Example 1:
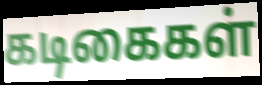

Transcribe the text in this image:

கடிகைகள்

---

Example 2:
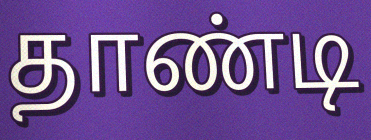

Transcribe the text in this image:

தாண்டி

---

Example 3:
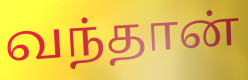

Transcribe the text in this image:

வந்தான்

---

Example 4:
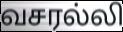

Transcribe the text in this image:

வசரல்லி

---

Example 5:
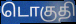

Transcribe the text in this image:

டொகுதி